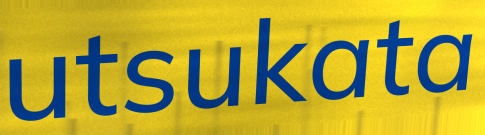
utsukata